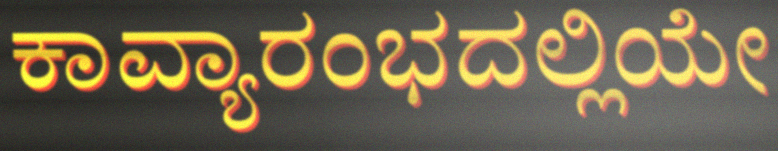
ಕಾವ್ಯಾರಂಭದಲ್ಲಿಯೇ